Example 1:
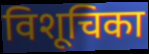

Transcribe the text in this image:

विशूचिका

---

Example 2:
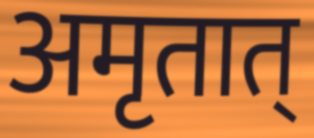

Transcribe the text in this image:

अमृतात्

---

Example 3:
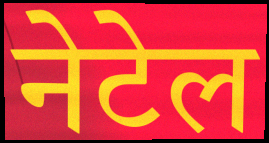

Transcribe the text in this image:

नेटेल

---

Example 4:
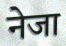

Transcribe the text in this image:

नेजा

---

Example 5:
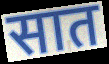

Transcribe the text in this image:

सात